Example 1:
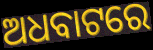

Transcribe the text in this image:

ଅଧବାଟରେ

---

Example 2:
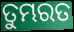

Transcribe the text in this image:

ତୁମ୍ଭରତ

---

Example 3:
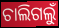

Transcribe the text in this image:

ଚାଲିଗଲୁଁ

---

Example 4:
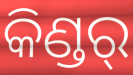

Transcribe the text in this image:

କିଣ୍ଡର୍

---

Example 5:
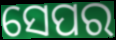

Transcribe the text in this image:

ସେପର